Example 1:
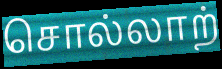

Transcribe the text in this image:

சொல்லாற்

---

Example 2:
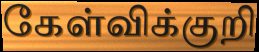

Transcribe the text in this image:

கேள்விக்குறி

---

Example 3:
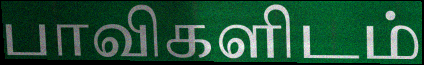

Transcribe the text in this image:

பாவிகளிடம்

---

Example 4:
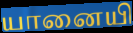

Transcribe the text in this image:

யானையி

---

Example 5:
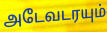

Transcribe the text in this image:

அடேவடரயும்